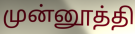
முன்னூத்தி